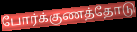
போர்க்குணத்தோடு